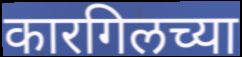
कारगिलच्या